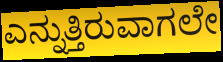
ಎನ್ನುತ್ತಿರುವಾಗಲೇ